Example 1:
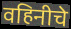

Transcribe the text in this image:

वहिनीचे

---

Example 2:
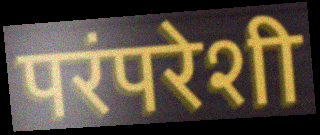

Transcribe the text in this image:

परंपरेशी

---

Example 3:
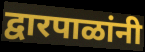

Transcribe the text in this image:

द्वारपाळांनी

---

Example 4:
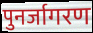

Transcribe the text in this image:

पुनर्जागरण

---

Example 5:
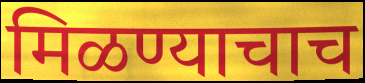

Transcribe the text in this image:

मिळण्याचाच